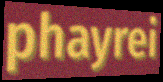
phayrei